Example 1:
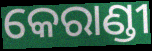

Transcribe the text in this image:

କେରାଣ୍ଡୀ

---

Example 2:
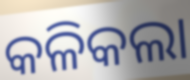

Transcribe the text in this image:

କଳିକଲା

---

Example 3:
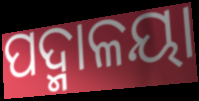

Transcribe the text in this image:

ପଦ୍ମାଳୟା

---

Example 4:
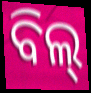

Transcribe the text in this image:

ବିଲ୍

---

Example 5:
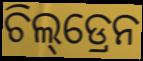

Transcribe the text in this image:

ଚିଲ୍‌ଡ୍ରେନ